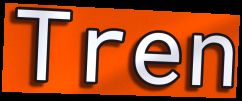
Tren